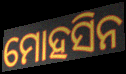
ମୋହସିନ